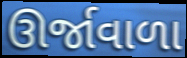
ઊર્જાવાળા